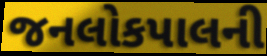
જનલોકપાલની